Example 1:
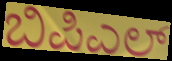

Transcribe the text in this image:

ಬಿಪಿಎಲ್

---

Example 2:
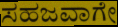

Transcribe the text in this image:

ಸಹಜವಾಗೇ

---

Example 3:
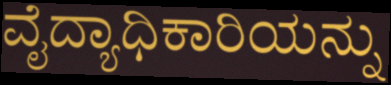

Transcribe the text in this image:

ವೈದ್ಯಾಧಿಕಾರಿಯನ್ನು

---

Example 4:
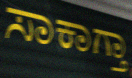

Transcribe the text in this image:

ಸಾಕಾಗ್ತಾ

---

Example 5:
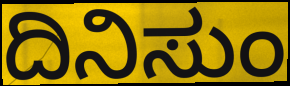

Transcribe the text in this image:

ದಿನಿಸುಂ